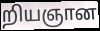
றியஞான